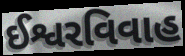
ઈશ્વરવિવાહ